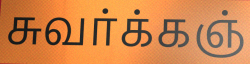
சுவர்க்கஞ்